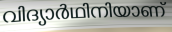
വിദ്യാർഥിനിയാണ്